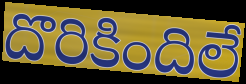
దొరికిందిలే